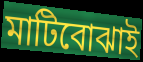
মাটিবোঝাই